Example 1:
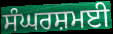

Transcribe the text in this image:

ਸੰਘਰਸ਼ਮਈ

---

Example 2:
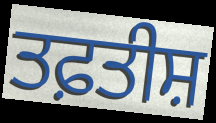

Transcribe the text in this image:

ਤਫ਼ਤੀਸ਼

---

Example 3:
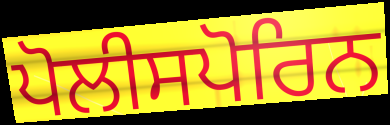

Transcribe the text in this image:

ਪੋਲੀਸਪੋਰਿਨ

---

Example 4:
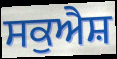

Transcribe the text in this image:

ਸਕੁਐਸ਼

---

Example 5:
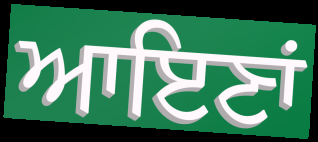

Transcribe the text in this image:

ਆਇਣਾਂ